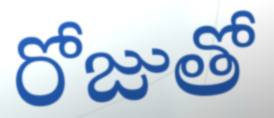
రోజుతో